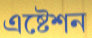
এষ্টেশন